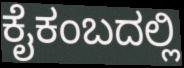
ಕೈಕಂಬದಲ್ಲಿ